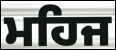
ਮਹਿਜ